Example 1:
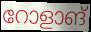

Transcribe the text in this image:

റോളാങ്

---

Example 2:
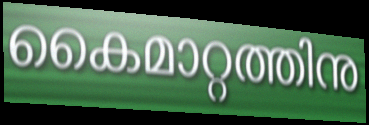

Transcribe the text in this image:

കൈമാറ്റത്തിനു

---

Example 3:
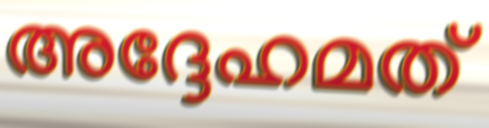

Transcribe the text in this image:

അദ്ദേഹമത്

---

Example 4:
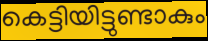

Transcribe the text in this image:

കെട്ടിയിട്ടുണ്ടാകും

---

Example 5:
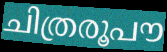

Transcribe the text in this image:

ചിത്രരൂപൗ